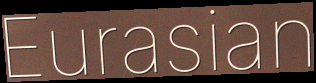
Eurasian